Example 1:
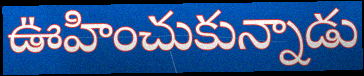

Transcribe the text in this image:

ఊహించుకున్నాడు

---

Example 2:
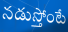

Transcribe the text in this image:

నడుస్తోంటే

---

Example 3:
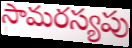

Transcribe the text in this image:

సామరస్యపు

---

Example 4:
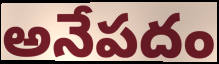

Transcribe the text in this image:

అనేపదం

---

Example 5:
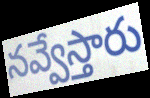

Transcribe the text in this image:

నవ్వేస్తారు